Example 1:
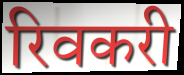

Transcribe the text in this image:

रिवकरी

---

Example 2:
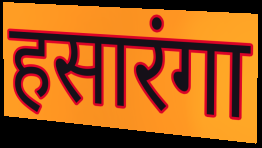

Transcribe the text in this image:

हसारंगा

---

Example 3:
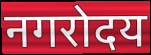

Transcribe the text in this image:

नगरोदय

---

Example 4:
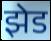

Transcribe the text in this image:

झेड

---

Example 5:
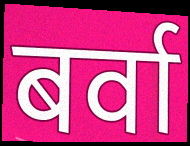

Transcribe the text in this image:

बर्वा